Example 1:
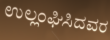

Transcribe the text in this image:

ಉಲ್ಲಂಘಿಸಿದವರ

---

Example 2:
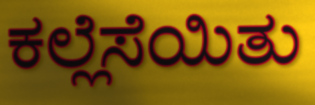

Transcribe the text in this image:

ಕಲ್ಲೆಸೆಯಿತು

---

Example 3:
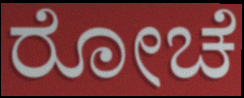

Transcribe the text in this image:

ರೋಚೆ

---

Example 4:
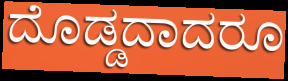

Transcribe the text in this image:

ದೊಡ್ಡದಾದರೂ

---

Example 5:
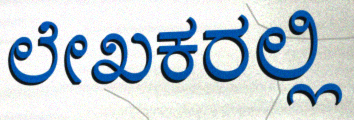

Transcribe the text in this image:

ಲೇಖಕರಲ್ಲಿ